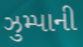
ઝુમ્પાની